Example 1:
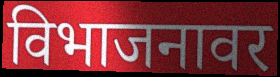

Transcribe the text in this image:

विभाजनावर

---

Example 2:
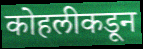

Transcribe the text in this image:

कोहलीकडून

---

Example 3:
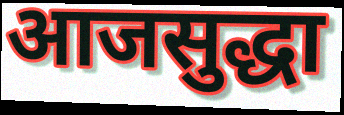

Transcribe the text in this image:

आजसुद्धा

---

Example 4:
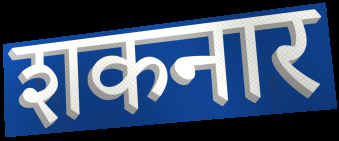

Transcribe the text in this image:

शकनार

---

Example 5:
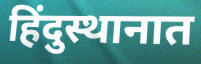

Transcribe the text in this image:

हिंदुस्थानात